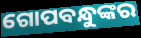
ଗୋପବନ୍ଧୁଙ୍କର